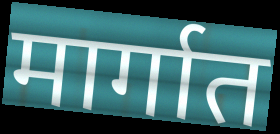
मार्गात